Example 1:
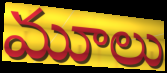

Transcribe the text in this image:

మూలు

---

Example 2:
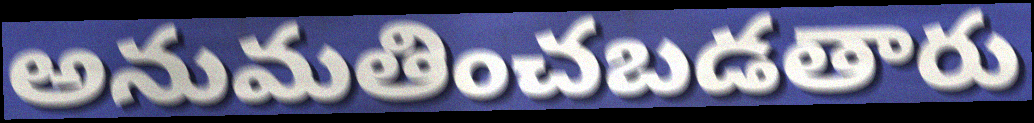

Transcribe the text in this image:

అనుమతించబడతారు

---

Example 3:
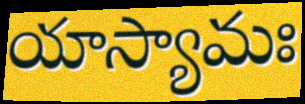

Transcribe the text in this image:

యాస్యామః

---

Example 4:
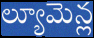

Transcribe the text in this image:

ల్యూమెన్ల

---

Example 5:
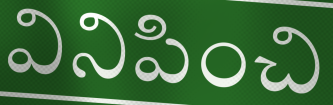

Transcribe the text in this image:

వినిపించి